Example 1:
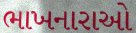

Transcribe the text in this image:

ભાખનારાઓ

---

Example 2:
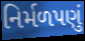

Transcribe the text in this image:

નિર્મળપણું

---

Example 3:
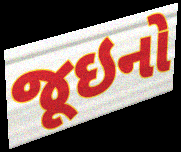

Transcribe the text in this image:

જૂઇનો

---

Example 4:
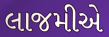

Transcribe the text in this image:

લાજમીએ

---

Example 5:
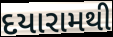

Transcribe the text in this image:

દયારામથી